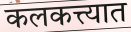
कलकत्त्यात